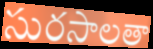
సురసాలతా